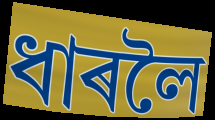
ধাৰলৈ